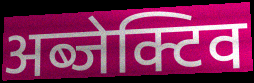
अब्जेक्टिव